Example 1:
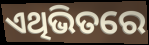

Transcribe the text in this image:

ଏଥିଭିତରେ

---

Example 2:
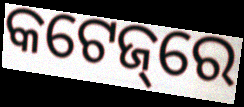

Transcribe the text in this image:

କଟେଜ୍‌ରେ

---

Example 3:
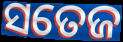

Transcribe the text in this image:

ସତେଜ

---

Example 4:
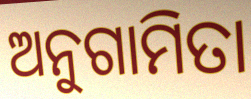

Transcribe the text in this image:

ଅନୁଗାମିତା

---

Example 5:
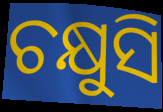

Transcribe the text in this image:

ଚକ୍ଷୁସି